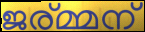
ജര്മ്മന്